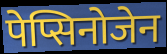
पेप्सिनोजेन